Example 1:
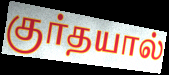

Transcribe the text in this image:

குர்தயால்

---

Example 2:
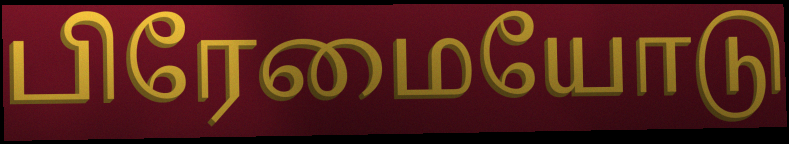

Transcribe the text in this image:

பிரேமையோடு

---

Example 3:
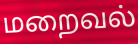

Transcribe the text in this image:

மறைவல்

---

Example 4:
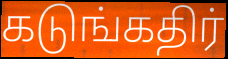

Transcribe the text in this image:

கடுங்கதிர்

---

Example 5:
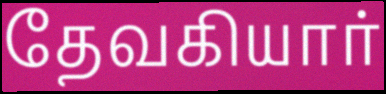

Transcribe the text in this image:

தேவகியார்